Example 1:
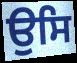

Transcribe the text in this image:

ਉਸਿ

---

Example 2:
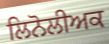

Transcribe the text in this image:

ਲਿਨੋਲੀਅਕ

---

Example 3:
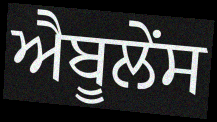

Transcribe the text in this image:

ਐਬੂਲੇਂਸ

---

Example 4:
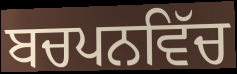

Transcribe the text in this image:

ਬਚਪਨਵਿੱਚ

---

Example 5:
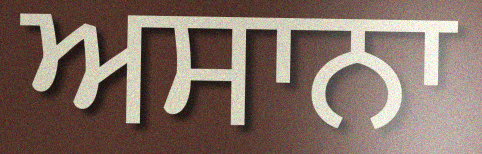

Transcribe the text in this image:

ਅਸਾਨਾ